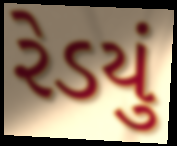
રેડયું